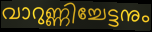
വാറുണ്ണിച്ചേട്ടനും